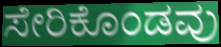
ಸೇರಿಕೊಂಡವು